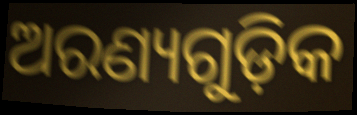
ଅରଣ୍ୟଗୁଡ଼ିକ